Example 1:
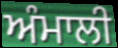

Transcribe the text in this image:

ਅੰਮਾਲੀ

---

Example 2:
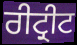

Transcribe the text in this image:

ਰੀਟ੍ਰੀਟ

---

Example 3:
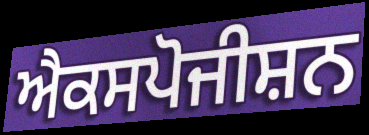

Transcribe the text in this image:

ਐਕਸਪੋਜੀਸ਼ਨ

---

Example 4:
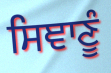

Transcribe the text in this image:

ਸਿਞਾਣੂੰ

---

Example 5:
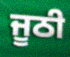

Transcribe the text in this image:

ਜੂਠੀ